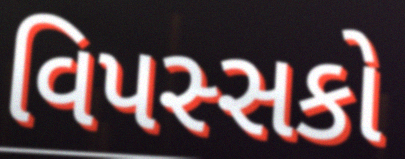
વિપસ્સકો